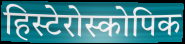
हिस्टेरोस्कोपिक